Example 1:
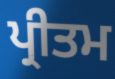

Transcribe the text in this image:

ਪ੍ਰੀਤਮ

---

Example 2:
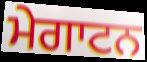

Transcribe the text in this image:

ਮੇਗਾਟਨ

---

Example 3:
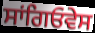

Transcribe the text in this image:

ਸਾਂਗਿਓਵੇਸ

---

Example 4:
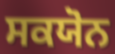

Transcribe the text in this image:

ਸਕਯੋਨ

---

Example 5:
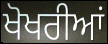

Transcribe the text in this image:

ਖੋਖਰੀਆਂ